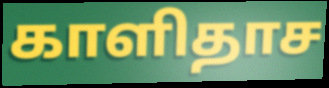
காளிதாச